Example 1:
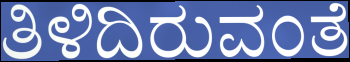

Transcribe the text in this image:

ತಿಳಿದಿರುವಂತೆ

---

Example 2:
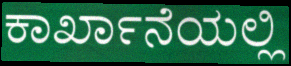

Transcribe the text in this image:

ಕಾರ್ಖಾನೆಯಲ್ಲಿ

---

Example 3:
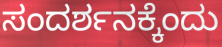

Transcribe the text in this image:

ಸಂದರ್ಶನಕ್ಕೆಂದು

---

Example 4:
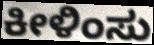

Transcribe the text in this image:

ಕೀಳಿಂಸು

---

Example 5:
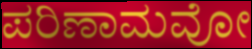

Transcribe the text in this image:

ಪರಿಣಾಮವೋ